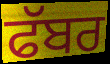
ਫੱਬਰ